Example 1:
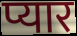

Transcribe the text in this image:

प्यार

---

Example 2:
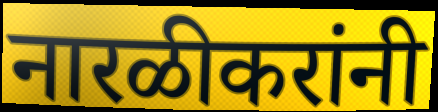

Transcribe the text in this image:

नारळीकरांनी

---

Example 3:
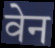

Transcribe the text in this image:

वेन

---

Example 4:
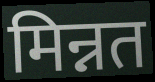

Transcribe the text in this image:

मिन्नत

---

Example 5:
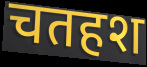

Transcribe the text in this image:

चतहश